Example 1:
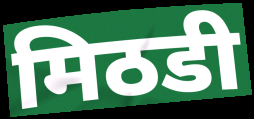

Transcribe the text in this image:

मिठडी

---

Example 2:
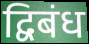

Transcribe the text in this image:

द्विबंध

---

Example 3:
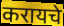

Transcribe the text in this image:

करायचे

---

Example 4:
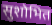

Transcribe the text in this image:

सुशोभित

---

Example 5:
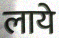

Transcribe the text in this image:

लाये